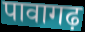
पावागढ़